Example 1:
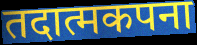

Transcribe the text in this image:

तदात्मकपना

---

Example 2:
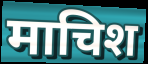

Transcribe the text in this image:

माचिश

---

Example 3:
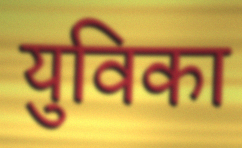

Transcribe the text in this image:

युविका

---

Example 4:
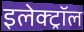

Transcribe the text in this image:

इलेक्ट्रॉल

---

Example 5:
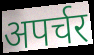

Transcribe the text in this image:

अपर्चर